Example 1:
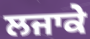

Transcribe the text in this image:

ਲਜਾਕੇ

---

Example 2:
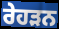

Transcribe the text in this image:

ਰੇਹੜਨ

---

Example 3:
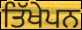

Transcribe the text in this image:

ਤਿੱਖੇਪਨ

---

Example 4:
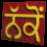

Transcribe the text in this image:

ਨੱਕੋਂ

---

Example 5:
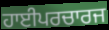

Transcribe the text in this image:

ਹਾਈਪਰਚਾਰਜ